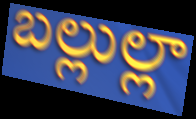
బల్లుల్లా